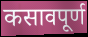
कसावपूर्ण